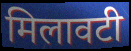
मिलावटी